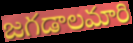
జగడాలమారి